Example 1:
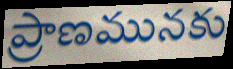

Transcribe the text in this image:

ప్రాణమునకు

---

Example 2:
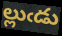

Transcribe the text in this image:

ల్లుఁడు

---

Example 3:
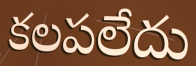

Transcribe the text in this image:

కలపలేదు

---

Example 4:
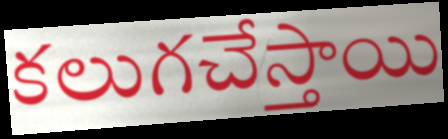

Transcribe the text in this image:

కలుగచేస్తాయి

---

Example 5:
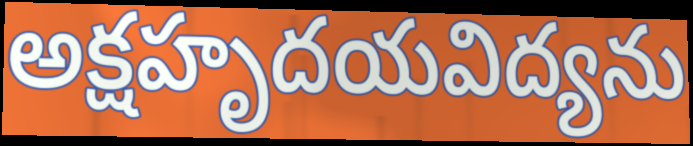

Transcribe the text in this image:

అక్షహృదయవిద్యను